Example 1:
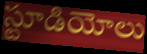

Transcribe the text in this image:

స్టూడియోలు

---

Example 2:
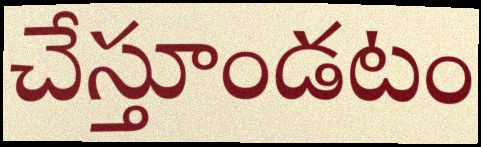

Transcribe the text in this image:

చేస్తూండటం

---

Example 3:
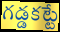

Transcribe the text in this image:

గడ్డకట్టే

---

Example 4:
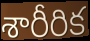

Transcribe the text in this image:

శారీరిక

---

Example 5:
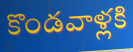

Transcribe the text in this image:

కొండవాళ్లకి